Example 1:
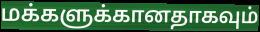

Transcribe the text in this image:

மக்களுக்கானதாகவும்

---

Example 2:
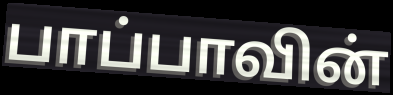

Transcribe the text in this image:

பாப்பாவின்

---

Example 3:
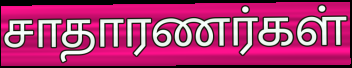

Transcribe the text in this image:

சாதாரணர்கள்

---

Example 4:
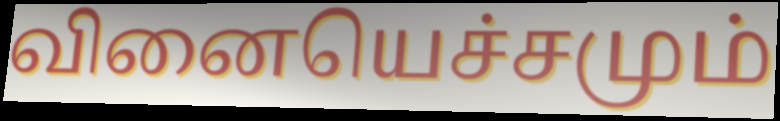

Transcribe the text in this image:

வினையெச்சமும்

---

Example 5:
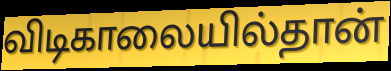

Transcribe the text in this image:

விடிகாலையில்தான்